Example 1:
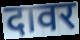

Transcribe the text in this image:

दावर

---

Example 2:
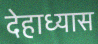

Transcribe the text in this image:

देहाध्यास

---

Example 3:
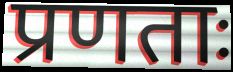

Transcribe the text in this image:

प्रणताः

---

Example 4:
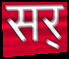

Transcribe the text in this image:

सर्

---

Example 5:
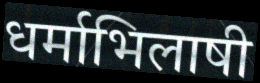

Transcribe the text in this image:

धर्माभिलाषी